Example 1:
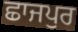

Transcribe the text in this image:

ਛਾਜਪੁਰ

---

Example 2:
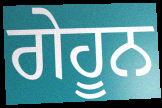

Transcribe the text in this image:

ਗੇਹੂਨ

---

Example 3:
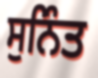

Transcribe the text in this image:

ਸੁਨਿੰਤ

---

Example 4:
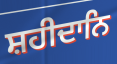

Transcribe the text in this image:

ਸ਼ਹੀਦਾਨਿ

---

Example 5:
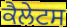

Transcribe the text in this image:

ਕੈਲੇਟਸ